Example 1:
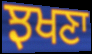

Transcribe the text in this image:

ਝਖਣਾ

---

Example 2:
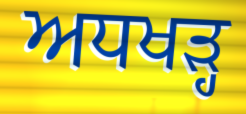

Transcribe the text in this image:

ਅਧਖੜ੍ਹ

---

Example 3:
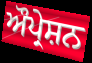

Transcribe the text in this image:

ਔਪ੍ਰੇਸ਼ਨ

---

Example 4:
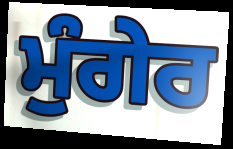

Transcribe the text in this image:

ਮੁੰਗੇਰ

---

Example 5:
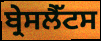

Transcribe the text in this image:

ਬ੍ਰੇਸਲੈੱਟਸ